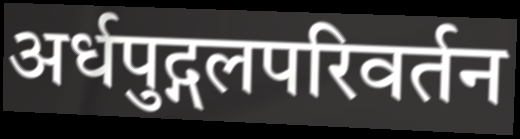
अर्धपुद्गलपरिवर्तन